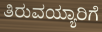
ತಿರುವಯ್ಯಾರಿಗೆ